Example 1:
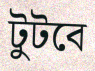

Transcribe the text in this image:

টুটবে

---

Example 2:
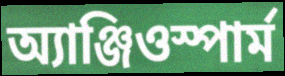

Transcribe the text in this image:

অ্যাঞ্জিওস্পার্ম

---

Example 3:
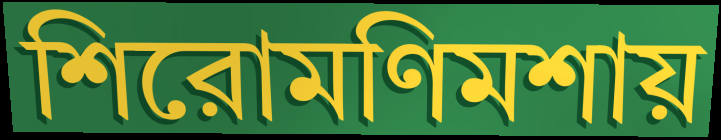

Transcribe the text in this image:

শিরোমণিমশায়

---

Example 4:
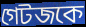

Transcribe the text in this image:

গেটজকে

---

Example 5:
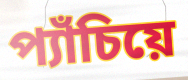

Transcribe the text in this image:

প্যাঁচিয়ে